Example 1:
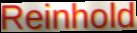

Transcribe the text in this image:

Reinhold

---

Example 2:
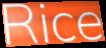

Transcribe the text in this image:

Rice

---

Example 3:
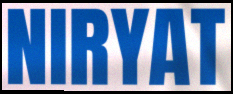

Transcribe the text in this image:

NIRYAT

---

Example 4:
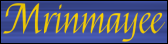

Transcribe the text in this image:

Mrinmayee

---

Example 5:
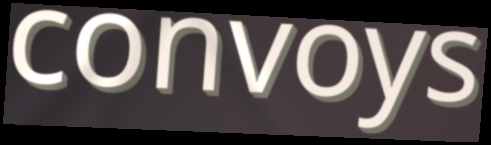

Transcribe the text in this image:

convoys